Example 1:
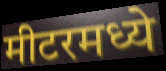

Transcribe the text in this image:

मीटरमध्ये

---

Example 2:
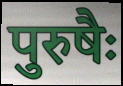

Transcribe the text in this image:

पुरुषैः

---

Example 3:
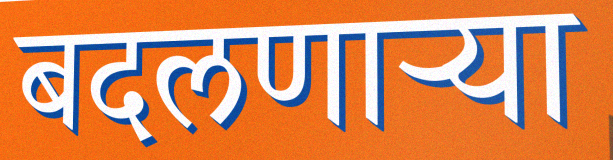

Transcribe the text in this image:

बदलणाऱ्या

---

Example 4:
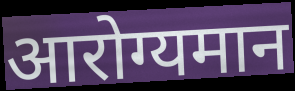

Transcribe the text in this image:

आरोग्यमान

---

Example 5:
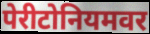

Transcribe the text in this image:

पेरीटोनियमवर